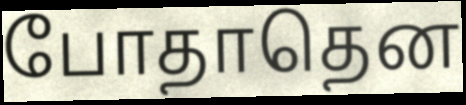
போதாதென